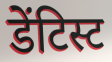
डेंटिस्ट